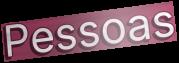
Pessoas